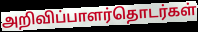
அறிவிப்பாளர்தொடர்கள்